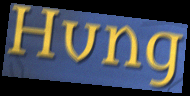
Hung